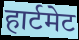
हार्टमेट